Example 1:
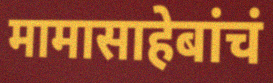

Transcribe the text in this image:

मामासाहेबांचं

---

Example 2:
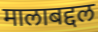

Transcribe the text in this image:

मालाबद्दल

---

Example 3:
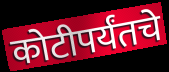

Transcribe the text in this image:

कोटीपर्यंतचे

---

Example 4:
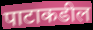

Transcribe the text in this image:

पाटाकडील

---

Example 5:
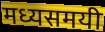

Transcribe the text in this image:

मध्यसमयी